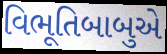
વિભૂતિબાબુએ